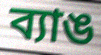
ব্যাঙ